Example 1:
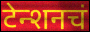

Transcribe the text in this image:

टेन्शनचं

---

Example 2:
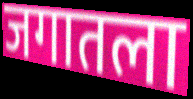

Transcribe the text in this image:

जगातला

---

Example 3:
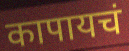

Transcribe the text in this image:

कापायचं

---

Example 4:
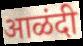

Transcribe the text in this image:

आळंदी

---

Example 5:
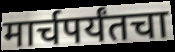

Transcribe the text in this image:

मार्चपर्यंतचा